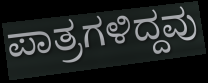
ಪಾತ್ರಗಳಿದ್ದವು